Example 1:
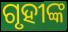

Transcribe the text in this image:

ଗୃହୀଙ୍କ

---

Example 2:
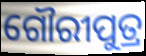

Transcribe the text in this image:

ଗୌରୀପୁତ୍ର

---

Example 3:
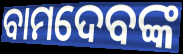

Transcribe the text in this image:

ବାମଦେବଙ୍କ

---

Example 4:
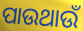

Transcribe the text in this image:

ପାଉଥାଉଁ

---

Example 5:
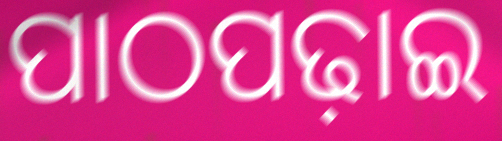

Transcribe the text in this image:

ପାଠପଢ଼ାଇ